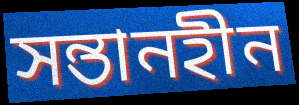
সন্তানহীন